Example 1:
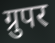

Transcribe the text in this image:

ग्रुपर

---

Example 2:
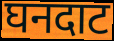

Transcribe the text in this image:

घनदाट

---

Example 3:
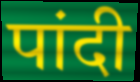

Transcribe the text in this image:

पांदी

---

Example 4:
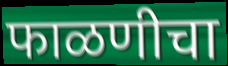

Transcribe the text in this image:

फाळणीचा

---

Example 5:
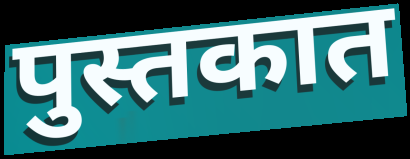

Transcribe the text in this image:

पुस्तकात